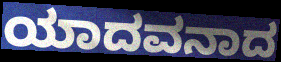
ಯಾದವನಾದ